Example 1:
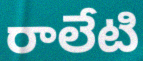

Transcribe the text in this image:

రాలేటి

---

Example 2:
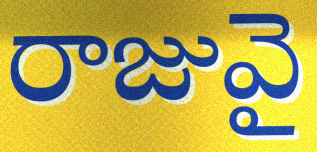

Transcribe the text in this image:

రాజువై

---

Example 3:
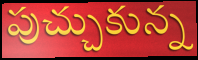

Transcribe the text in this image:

పుచ్చుకున్న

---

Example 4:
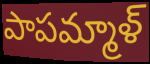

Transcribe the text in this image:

పాపమ్మాళ్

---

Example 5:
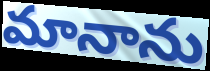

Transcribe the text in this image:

మానాను